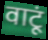
वाटूं